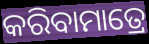
କରିବାମାତ୍ରେ